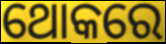
ଥୋକରେ